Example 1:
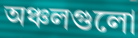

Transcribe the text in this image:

অঞ্চলগুলো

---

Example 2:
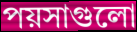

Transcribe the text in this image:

পয়সাগুলো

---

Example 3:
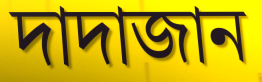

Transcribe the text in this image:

দাদাজান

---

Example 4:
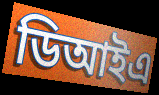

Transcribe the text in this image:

ডিআইএ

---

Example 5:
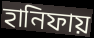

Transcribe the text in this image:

হানিফায়